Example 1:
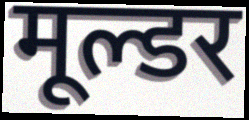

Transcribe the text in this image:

मूल्डर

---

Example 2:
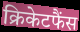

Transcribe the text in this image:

क्रिकेटफैंस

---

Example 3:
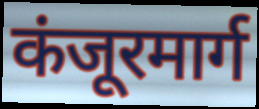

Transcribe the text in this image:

कंजूरमार्ग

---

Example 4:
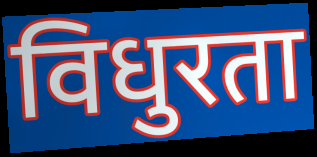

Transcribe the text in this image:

विधुरता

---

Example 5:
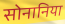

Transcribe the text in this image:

सोनानिया